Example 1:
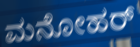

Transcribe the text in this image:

ಮನೋಹರ್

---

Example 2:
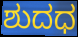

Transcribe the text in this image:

ಶುದಧ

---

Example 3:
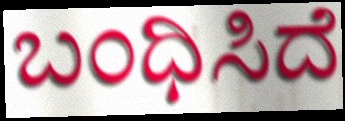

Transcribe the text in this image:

ಬಂಧಿಸಿದೆ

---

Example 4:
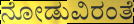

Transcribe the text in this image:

ನೋಡುವಿರಂತೆ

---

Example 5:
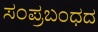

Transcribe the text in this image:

ಸಂಪ್ರಬಂಧದ